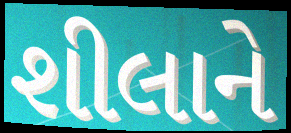
શીલાને